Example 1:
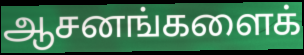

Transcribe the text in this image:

ஆசனங்களைக்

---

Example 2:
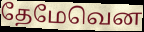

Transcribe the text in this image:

தேமேவென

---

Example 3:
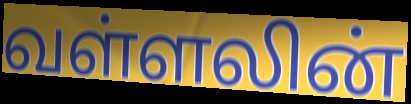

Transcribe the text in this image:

வள்ளலின்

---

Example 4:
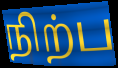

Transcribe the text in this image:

நிற்ப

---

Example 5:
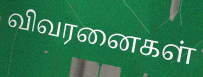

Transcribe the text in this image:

விவரனைகள்